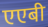
एएबी